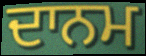
ਦਾਨਮ